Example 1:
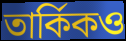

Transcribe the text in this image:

তার্কিকও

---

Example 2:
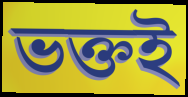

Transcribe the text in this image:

ভক্তই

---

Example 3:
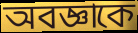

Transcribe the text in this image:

অবজ্ঞাকে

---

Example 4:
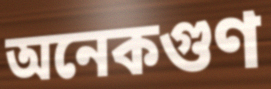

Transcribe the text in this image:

অনেকগুণ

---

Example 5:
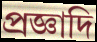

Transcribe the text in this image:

প্রজ্ঞাদি